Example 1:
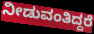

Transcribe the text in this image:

ನೀಡುವಂತಿದ್ದರೆ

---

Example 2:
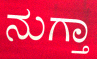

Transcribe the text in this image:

ನುಗ್ತಾ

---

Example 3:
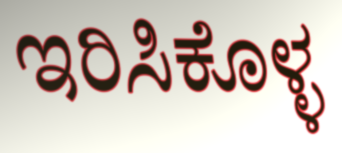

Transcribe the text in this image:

ಇರಿಸಿಕೊಳ್ಳ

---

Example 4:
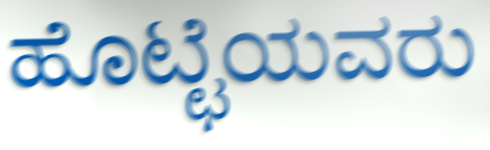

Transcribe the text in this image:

ಹೊಟ್ಟೆಯವರು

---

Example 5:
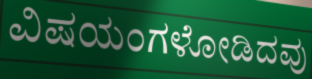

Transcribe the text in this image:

ವಿಷಯಂಗಳೋಡಿದವು